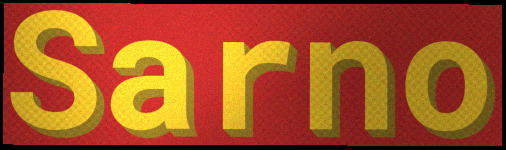
Sarno